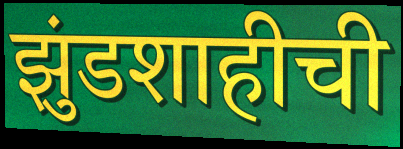
झुंडशाहीची